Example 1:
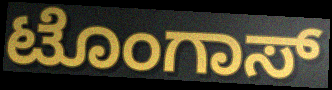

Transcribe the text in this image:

ಟೊಂಗಾಸ್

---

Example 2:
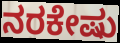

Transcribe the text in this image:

ನರಕೇಷು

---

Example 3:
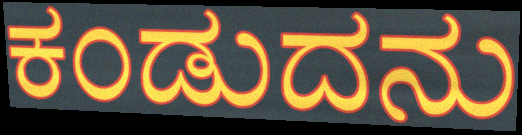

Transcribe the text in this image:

ಕಂಡುದನು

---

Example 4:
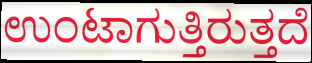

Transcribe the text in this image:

ಉಂಟಾಗುತ್ತಿರುತ್ತದೆ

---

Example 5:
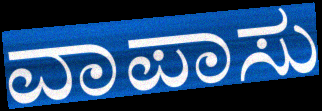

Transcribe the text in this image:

ವಾಪಾಸು